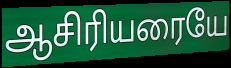
ஆசிரியரையே